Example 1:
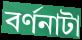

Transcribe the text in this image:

বর্ণনাটা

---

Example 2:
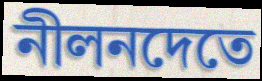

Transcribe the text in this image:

নীলনদেতে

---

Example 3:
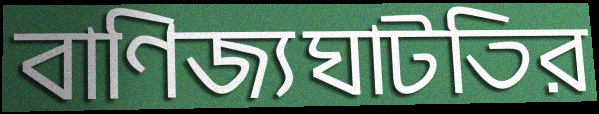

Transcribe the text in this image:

বাণিজ্যঘাটতির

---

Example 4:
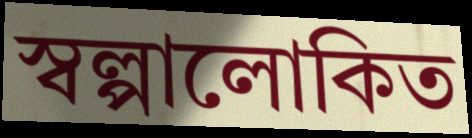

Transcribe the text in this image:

স্বল্পালোকিত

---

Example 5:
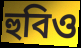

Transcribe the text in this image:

হুবিও